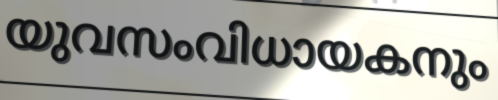
യുവസംവിധായകനും